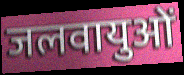
जलवायुओं